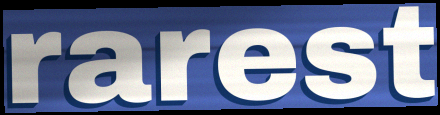
rarest